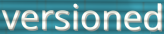
versioned